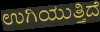
ಉಗಿಯುತ್ತಿದೆ